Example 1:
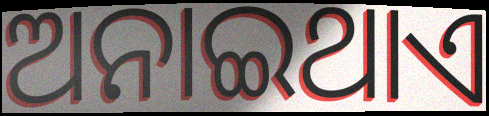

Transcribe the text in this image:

ଅନାଇଥାଏ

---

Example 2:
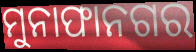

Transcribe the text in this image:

ମୁନାଫାନଗର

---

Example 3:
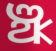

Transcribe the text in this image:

ଞ୍ଝ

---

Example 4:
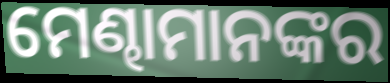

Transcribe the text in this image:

ମେଣ୍ଢାମାନଙ୍କର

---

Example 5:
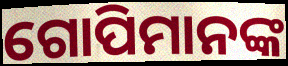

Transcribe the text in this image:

ଗୋପିମାନଙ୍କ